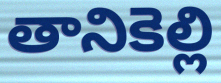
తానికెల్లి